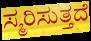
ಸ್ಮರಿಸುತ್ತದೆ